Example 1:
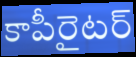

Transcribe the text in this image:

కాపీరైటర్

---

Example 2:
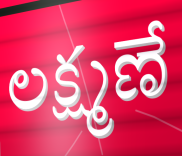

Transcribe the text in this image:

లక్ష్మణే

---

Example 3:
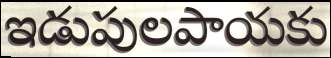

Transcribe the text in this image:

ఇడుపులపాయకు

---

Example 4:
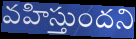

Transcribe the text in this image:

వహిస్తుందని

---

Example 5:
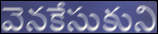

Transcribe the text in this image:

వెనకేసుకుని